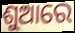
ଶୁଆରେ